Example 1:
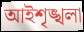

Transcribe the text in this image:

আইশৃঙ্খলা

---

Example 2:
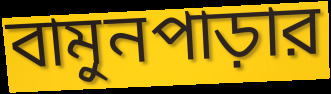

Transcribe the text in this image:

বামুনপাড়ার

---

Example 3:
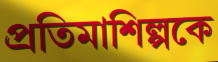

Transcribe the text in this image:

প্রতিমাশিল্পকে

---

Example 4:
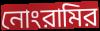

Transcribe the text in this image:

নোংরামির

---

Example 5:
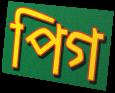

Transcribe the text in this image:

পিগ